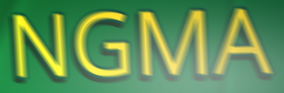
NGMA